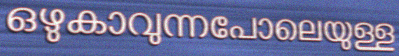
ഒഴുകാവുന്നപോലെയുള്ള